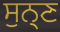
ਸੁਨ੍ਣ